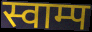
स्वाम्प